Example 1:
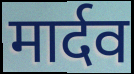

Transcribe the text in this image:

मार्दव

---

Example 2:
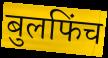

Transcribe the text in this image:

बुलफिंच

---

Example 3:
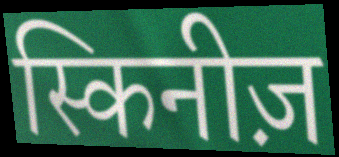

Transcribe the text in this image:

स्किनीज़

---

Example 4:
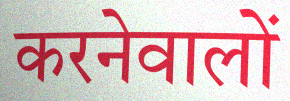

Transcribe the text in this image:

करनेवालों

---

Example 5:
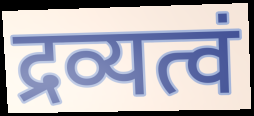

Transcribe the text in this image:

द्रव्यत्वं